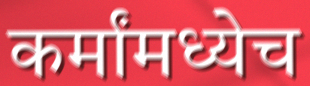
कर्मांमध्येच